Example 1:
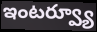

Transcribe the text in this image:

ఇంటర్వ్యూ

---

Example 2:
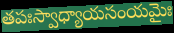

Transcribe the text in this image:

తపఃస్వాధ్యాయసంయమైః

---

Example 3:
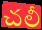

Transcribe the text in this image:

చలీ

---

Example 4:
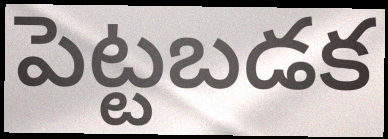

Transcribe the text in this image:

పెట్టబడక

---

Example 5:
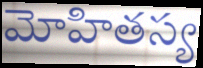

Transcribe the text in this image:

మోహితస్య